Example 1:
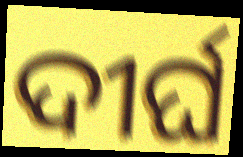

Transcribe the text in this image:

ଦୀର୍ଘ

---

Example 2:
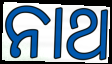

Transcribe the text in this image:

ନାଥ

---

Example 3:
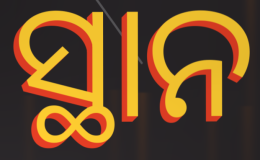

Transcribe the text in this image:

ସ୍ଥାନ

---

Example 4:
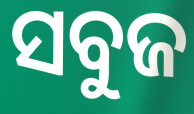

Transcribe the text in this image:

ସବୁଜ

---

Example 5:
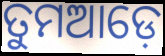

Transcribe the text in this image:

ତୁମଆଡ଼େ